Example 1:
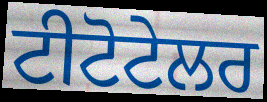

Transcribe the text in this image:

ਟੀਟੋਟੇਲਰ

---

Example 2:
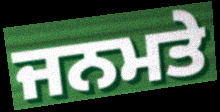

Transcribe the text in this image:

ਜਨਮਤੇ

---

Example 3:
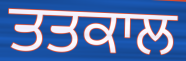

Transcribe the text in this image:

ਤਤਕਾਲ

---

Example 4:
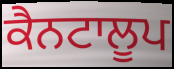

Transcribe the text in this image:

ਕੈਨਟਾਲੂਪ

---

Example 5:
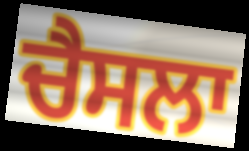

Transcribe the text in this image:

ਚੈਸਲਾ